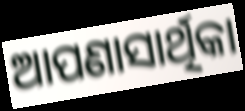
ଆପଣାସାର୍ଥିକା